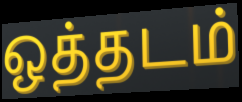
ஒத்தடம்